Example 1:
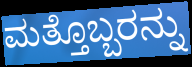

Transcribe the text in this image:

ಮತ್ತೊಬ್ಬರನ್ನು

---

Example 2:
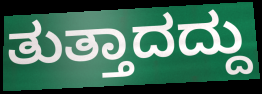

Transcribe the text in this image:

ತುತ್ತಾದದ್ದು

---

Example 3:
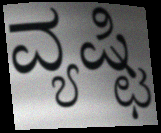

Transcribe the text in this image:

ವ್ಯಷ್ಟಿ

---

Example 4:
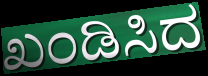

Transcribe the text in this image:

ಖಂಡಿಸಿದ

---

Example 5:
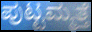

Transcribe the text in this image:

ಪುಟ್ಟಮ್ಮತ್ತೆ